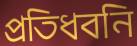
প্রতিধবনি